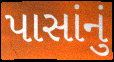
પાસાંનું